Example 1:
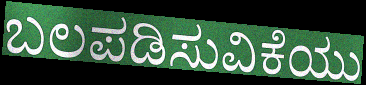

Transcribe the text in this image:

ಬಲಪಡಿಸುವಿಕೆಯು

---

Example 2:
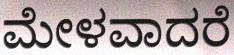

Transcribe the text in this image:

ಮೇಳವಾದರೆ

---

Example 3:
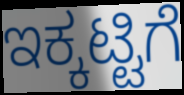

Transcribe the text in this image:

ಇಕ್ಕಟ್ಟಿಗೆ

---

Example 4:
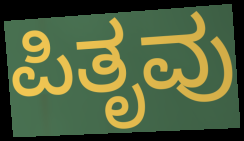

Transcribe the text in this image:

ಪಿತೃವು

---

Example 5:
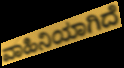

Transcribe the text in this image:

ವಾಹಿನಿಯಾಗಿದೆ